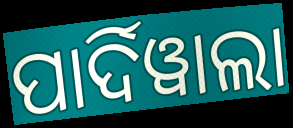
ପାର୍ଦିୱାଲା